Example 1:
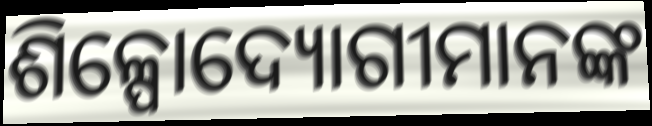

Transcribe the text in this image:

ଶିଳ୍ପୋଦ୍ୟୋଗୀମାନଙ୍କ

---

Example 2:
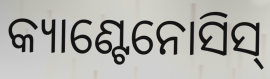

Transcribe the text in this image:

କ୍ୟାଣ୍ଟେନୋସିସ୍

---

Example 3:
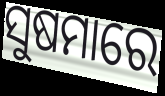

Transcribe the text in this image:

ସୁଷମାରେ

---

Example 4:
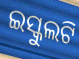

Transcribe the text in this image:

ଇସ୍କୁଲଟି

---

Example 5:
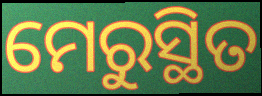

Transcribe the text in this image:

ମେରୁସ୍ଥିତ